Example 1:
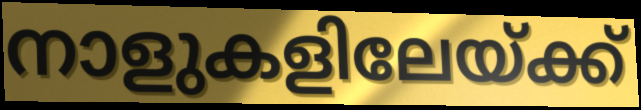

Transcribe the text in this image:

നാളുകളിലേയ്ക്ക്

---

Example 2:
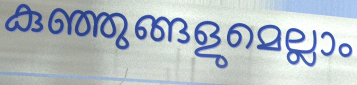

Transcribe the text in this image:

കുഞ്ഞുങ്ങളുമെല്ലാം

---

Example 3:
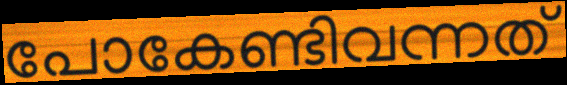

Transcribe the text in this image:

പോകേണ്ടിവന്നത്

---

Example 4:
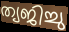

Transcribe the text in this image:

ത്യജിച്ചു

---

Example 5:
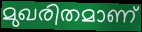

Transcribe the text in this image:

മുഖരിതമാണ്